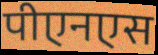
पीएनएस